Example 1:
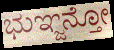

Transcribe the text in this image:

ಭುಞ್ಜನ್ತೋ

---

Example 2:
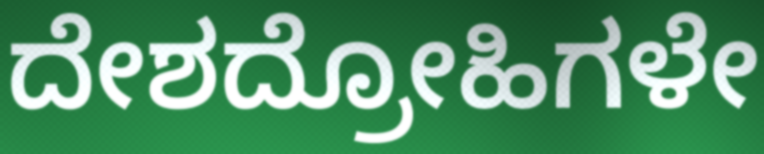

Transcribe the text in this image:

ದೇಶದ್ರೋಹಿಗಳೇ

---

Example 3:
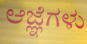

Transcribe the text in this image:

ಆಜ್ಞೆಗಳು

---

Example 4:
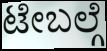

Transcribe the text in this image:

ಟೇಬಲ್ಗೆ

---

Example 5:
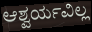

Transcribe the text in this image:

ಆಶ್ವರ್ಯವಿಲ್ಲ